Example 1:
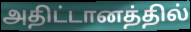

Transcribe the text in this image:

அதிட்டானத்தில்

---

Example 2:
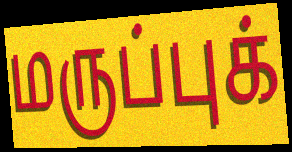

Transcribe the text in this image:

மருப்புக்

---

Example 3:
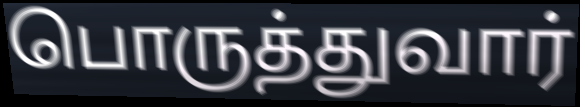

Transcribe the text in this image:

பொருத்துவார்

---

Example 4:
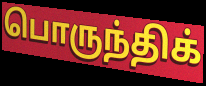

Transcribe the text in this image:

பொருந்திக்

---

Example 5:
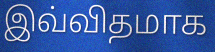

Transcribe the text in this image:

இவ்விதமாக